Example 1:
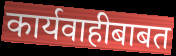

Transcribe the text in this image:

कार्यवाहीबाबत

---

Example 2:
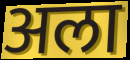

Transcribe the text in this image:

अला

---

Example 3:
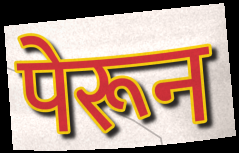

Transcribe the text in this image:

पेरून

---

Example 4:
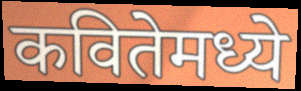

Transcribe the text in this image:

कवितेमध्ये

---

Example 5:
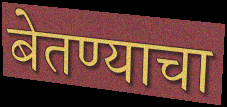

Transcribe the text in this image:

बेतण्याचा